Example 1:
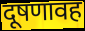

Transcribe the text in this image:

दूषणावह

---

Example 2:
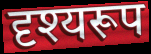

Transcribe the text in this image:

दृश्यरूप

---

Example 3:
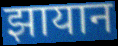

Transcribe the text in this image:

झायान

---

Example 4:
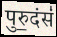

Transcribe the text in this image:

पुरु॒दंसं॑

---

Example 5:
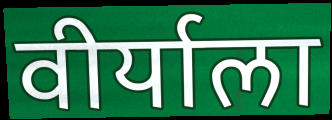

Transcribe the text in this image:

वीर्याला